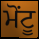
ਮੋਂਟੂ